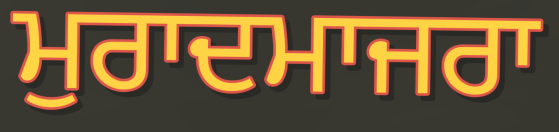
ਮੁਰਾਦਮਾਜਰਾ